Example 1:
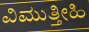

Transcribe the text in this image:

ವಿಮುತ್ತೀಹಿ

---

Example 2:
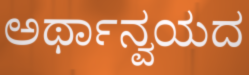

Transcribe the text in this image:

ಅರ್ಥಾನ್ವಯದ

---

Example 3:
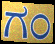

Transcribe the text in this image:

ಗಂ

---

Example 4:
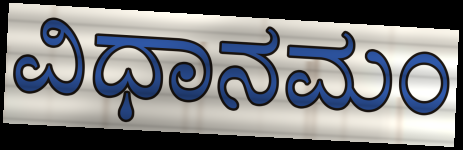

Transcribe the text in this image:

ವಿಧಾನಮಂ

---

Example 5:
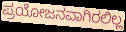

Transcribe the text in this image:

ಪ್ರಯೋಜನವಾಗಿರಲಿಲ್ಲ